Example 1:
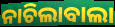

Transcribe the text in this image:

ନାଚିଲାବାଲା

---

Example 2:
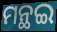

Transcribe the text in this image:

ମନ୍ଥଇ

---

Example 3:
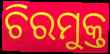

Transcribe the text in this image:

ଚିରମୁକ୍ତ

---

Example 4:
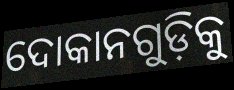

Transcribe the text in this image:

ଦୋକାନଗୁଡ଼ିକୁ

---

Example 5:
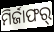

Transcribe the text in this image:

ମିର୍ଜାଫର୍